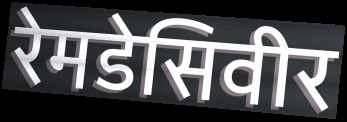
रेमडेसिवीर